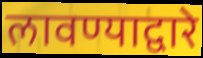
लावण्याद्वारे